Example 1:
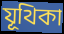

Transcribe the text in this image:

যূথিকা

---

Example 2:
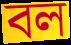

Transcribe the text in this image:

বল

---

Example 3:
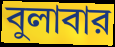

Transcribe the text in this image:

বুলাবার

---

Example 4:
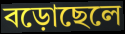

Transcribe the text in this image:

বড়োছেলে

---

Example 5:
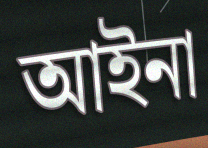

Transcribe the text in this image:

আইনা